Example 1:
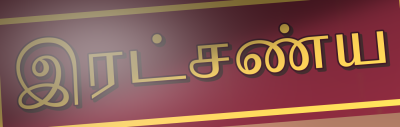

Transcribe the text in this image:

இரட்சண்ய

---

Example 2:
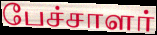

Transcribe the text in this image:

பேச்சாளர்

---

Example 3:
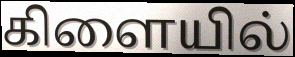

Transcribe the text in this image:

கிளையில்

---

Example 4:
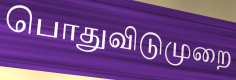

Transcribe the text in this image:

பொதுவிடுமுறை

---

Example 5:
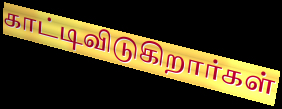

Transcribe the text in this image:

காட்டிவிடுகிறார்கள்